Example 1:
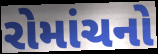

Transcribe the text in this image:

રોમાંચનો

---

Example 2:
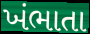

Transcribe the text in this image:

ખંભાતા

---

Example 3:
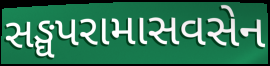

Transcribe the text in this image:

સઙ્ઘપરામાસવસેન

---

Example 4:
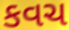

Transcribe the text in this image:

કવચ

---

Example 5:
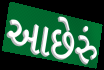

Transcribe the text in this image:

આછેરું